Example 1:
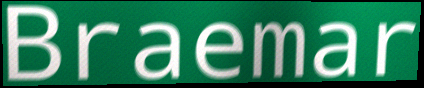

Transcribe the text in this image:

Braemar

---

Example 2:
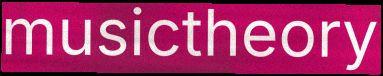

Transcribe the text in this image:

musictheory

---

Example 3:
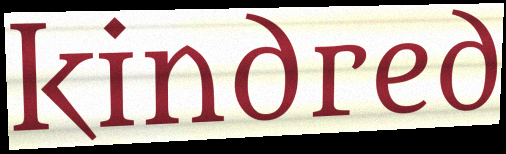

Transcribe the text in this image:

kindred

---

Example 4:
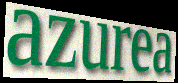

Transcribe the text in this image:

azurea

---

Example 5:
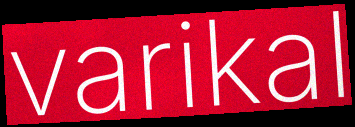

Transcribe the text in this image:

varikal